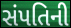
સંપતિની